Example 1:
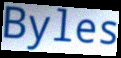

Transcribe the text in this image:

Byles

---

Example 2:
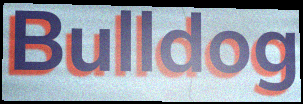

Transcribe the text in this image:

Bulldog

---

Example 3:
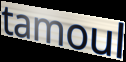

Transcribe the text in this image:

tamoul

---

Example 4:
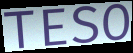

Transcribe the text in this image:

TESO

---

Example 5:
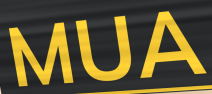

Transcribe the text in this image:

MUA